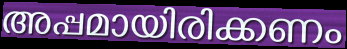
അപ്പമായിരിക്കണം